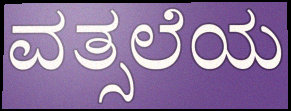
ವತ್ಸಲೆಯ